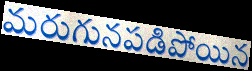
మరుగునపడిపోయిన